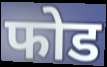
फोड